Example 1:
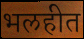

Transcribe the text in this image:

भलहीत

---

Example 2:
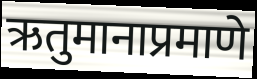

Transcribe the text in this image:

ऋतुमानाप्रमाणे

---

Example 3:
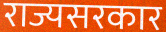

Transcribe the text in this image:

राज्यसरकार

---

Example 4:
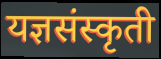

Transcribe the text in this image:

यज्ञसंस्कृती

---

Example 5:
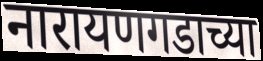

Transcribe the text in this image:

नारायणगडाच्या